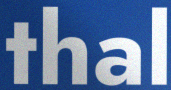
thal